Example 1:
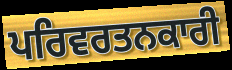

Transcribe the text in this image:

ਪਰਿਵਰਤਨਕਾਰੀ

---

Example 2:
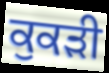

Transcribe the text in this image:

ਕੁਕੜੀ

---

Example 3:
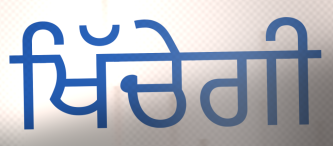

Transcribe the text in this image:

ਖਿੱਚੇਗੀ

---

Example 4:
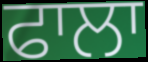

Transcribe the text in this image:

ਫਾਲਾ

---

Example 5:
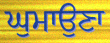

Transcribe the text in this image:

ਘੁਮਾਉਣਾ